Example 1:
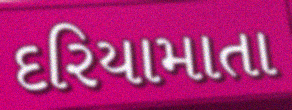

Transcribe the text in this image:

દરિયામાતા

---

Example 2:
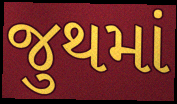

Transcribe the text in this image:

જુથમાં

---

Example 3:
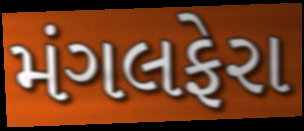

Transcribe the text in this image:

મંગલફેરા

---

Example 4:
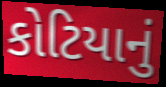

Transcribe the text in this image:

કોટિયાનું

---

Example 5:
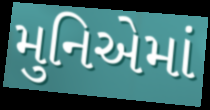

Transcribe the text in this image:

મુનિએમાં